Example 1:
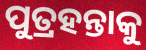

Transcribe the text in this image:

ପୁତ୍ରହନ୍ତାକୁ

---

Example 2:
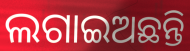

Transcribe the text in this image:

ଲଗାଇଅଛନ୍ତି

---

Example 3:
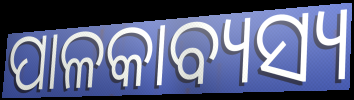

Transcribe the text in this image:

ପାଳକାବ୍ୟସ୍ୟ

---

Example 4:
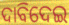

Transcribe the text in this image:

ଦାବିଦେଇ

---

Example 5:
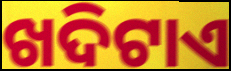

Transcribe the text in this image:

ଖଦିଟାଏ